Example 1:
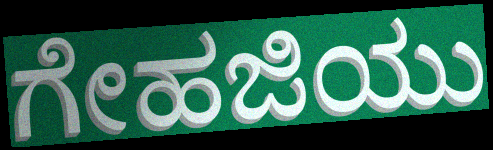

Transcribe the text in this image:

ಗೇಹಜಿಯು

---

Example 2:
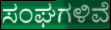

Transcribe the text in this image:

ಸಂಘಗಳಿವೆ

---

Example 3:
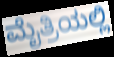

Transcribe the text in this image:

ಮೈತ್ರಿಯಲ್ಲಿ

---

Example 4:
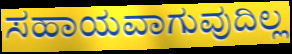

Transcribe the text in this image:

ಸಹಾಯವಾಗುವುದಿಲ್ಲ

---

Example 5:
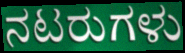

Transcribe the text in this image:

ನಟರುಗಳು